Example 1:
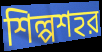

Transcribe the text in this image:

শিল্পশহর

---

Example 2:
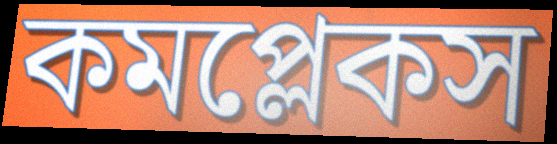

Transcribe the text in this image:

কমপ্লেকস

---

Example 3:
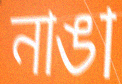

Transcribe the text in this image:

নাঙা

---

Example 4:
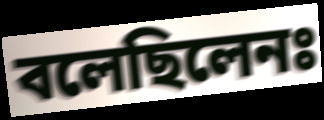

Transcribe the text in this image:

বলেছিলেনঃ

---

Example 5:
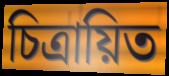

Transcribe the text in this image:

চিত্রায়িত